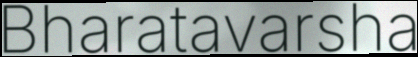
Bharatavarsha